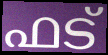
ഫട്